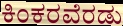
ಕಿಂಕರವೆರಡು